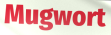
Mugwort